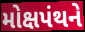
મોક્ષપંથને